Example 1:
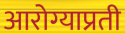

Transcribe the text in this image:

आरोग्याप्रती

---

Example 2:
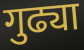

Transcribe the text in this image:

गुढ्या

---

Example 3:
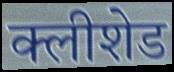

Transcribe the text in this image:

क्लीशेड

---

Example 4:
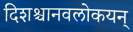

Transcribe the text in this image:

दिशश्चानवलोकयन्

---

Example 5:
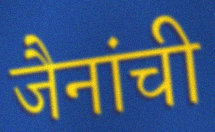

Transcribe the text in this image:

जैनांची